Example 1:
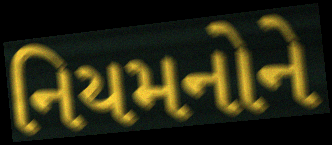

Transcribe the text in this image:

નિયમનોને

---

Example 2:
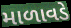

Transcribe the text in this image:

માળાવડે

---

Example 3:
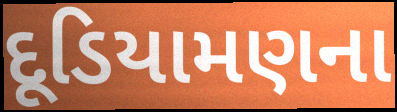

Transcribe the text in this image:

દૂડિયામણના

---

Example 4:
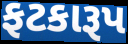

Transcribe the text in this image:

ફટકારૂપ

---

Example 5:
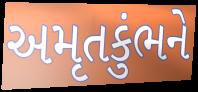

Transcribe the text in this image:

અમૃતકુંભને